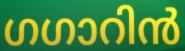
ഗഗാറിൻ